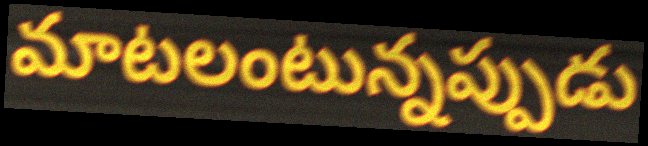
మాటలంటున్నప్పుడు